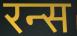
रन्स